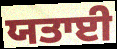
ਯਤਾਈ